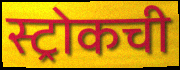
स्ट्रोकची